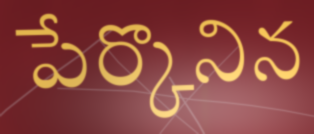
పేర్కొనిన